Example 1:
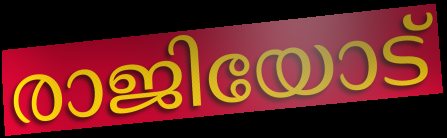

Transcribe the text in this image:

രാജിയോട്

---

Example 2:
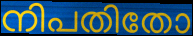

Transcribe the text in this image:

നിപതിതോ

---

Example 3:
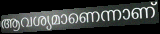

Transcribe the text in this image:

ആവശ്യമാണെന്നാണ്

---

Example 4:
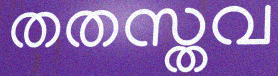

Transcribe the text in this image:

തതസ്തവ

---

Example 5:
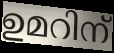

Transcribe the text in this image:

ഉമറിന്